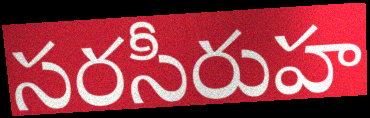
సరసీరుహ